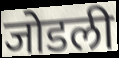
जोडली